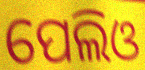
ପେଲିଓ